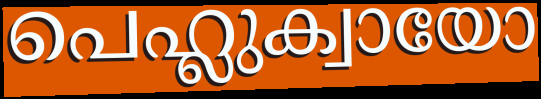
പെഹ്ലുക്വായോ